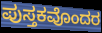
ಪುಸ್ತಕವೊಂದರ